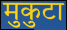
मुकुटा